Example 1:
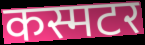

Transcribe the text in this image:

कस्मटर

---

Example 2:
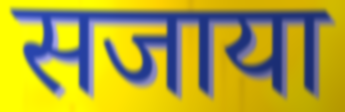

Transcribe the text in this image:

सजाया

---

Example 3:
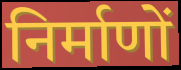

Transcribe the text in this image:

निर्माणों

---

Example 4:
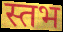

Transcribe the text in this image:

स्तभ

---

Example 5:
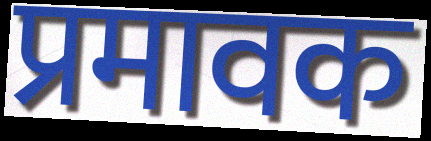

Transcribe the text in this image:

प्रमावक